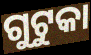
ଗୁଟୁକା